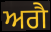
ਅਗੈ